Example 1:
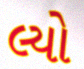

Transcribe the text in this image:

લ્યો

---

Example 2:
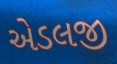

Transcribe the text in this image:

એડલજી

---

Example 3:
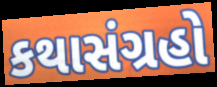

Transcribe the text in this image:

કથાસંગ્રહો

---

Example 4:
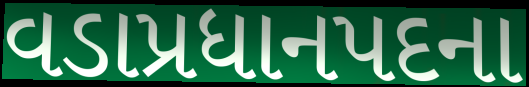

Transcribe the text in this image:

વડાપ્રધાનપદના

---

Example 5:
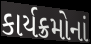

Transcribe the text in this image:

કાર્યક્રમોનાં